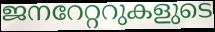
ജനറേറ്ററുകളുടെ